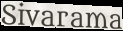
Sivarama